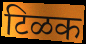
टिळक